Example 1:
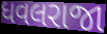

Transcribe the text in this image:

ધવલરાજા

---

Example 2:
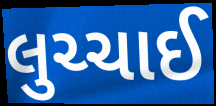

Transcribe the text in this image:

લુચ્ચાઈ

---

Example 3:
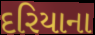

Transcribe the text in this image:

દરિયાના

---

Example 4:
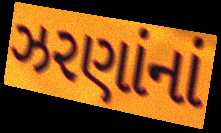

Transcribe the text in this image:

ઝરણાંનાં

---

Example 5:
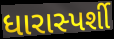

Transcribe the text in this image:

ધારાસ્પર્શી